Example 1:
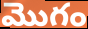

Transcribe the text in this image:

మొగం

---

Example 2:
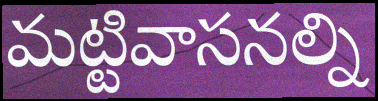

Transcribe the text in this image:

మట్టివాసనల్ని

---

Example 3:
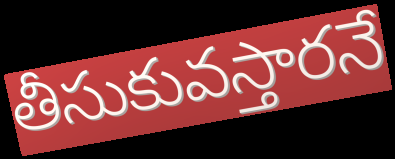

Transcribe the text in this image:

తీసుకువస్తారనే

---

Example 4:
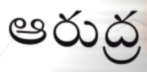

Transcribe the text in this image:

ఆరుద్ర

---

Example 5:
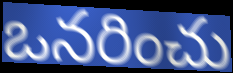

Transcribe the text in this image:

ఒనరించు